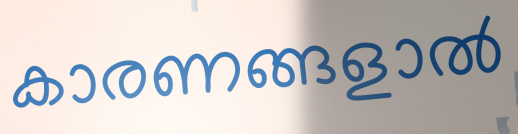
കാരണങ്ങളാൽ